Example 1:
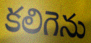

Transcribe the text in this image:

కలిగెను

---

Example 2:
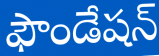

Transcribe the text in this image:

ఫౌండేషన్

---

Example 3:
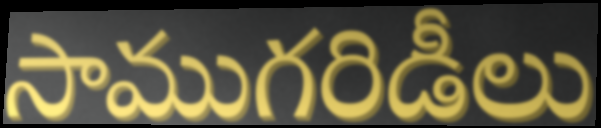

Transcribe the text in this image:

సాముగరిడీలు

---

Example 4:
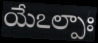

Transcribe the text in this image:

యేఽల్పాః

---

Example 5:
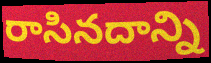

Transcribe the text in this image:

రాసినదాన్ని